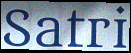
Satri